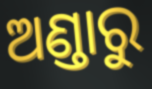
ଅଣ୍ଡାରୁ